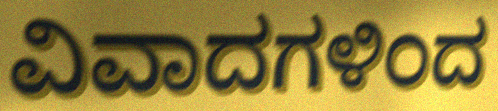
ವಿವಾದಗಳಿಂದ